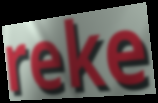
reke